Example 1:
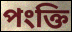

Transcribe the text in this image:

পংক্তি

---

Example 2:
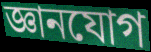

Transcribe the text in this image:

জ্ঞানযোগ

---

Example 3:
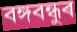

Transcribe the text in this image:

বঙ্গবন্ধুৰ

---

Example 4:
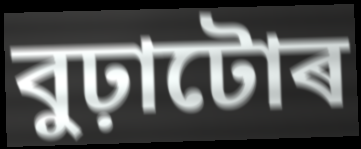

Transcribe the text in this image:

বুঢ়াটোৰ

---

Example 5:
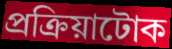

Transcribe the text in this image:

প্ৰক্ৰিয়াটোক